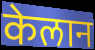
केलान